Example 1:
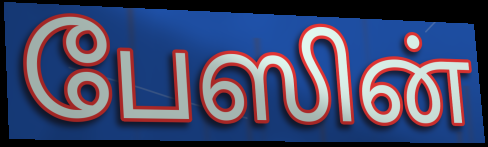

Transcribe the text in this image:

பேஸின்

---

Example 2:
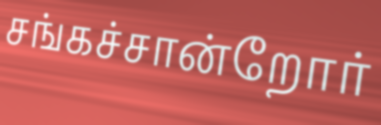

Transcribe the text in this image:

சங்கச்சான்றோர்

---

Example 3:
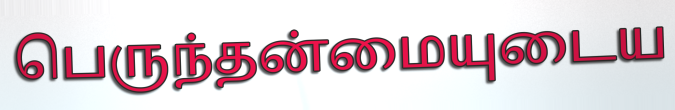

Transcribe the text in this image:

பெருந்தன்மையுடைய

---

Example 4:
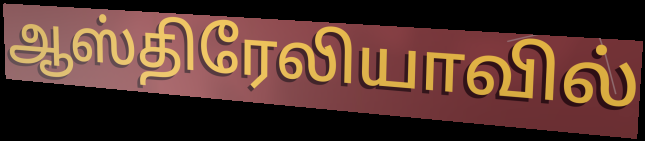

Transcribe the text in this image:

ஆஸ்திரேலியாவில்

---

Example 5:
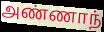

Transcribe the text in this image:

அண்ணாந்